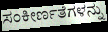
ಸಂಕೀರ್ಣತೆಗಳನ್ನು